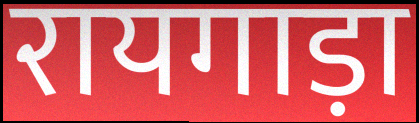
रायगाड़ा